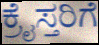
ಕ್ರೈಸ್ತರಿಗೆ